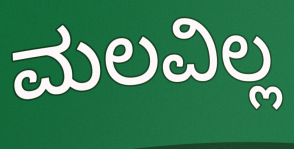
ಮಲವಿಲ್ಲ